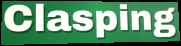
Clasping